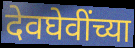
देवघेवींच्या